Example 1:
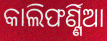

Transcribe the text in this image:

କାଲିଫର୍ଣ୍ଣିଆ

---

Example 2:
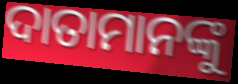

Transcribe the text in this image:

ଦାତାମାନଙ୍କୁ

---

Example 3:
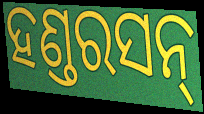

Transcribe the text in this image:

ହଣ୍ଡରସନ୍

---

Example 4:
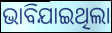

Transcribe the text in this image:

ଭାବିଯାଇଥିଲା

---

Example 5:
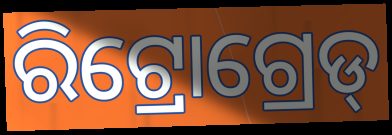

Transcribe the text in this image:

ରିଟ୍ରୋଗ୍ରେଡ୍